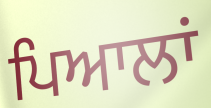
ਪਿਆਲਾਂ